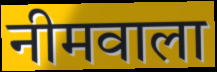
नीमवाला